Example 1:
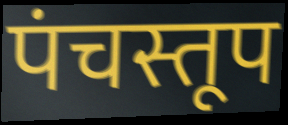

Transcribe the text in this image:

पंचस्तूप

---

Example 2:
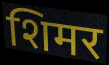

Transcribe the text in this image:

शिमर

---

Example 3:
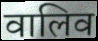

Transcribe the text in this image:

वालिव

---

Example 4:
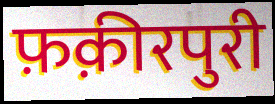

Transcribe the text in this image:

फ़क़ीरपुरी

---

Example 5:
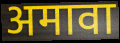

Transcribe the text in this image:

अमावा